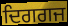
ਦਿਗਗਜ